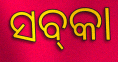
ସବ୍‌କା